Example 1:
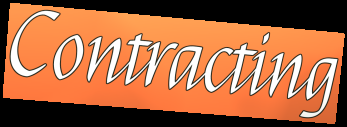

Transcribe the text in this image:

Contracting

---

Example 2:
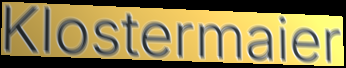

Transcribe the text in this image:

Klostermaier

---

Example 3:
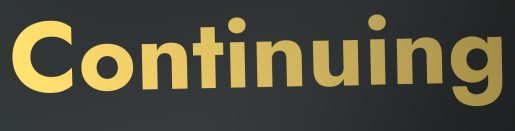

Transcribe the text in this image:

Continuing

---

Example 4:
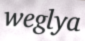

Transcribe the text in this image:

weglya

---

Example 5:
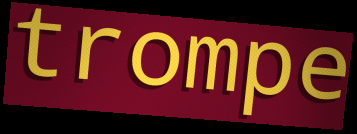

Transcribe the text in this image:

trompe